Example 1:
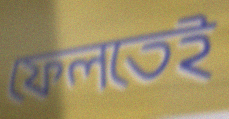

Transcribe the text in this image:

ফেলতেই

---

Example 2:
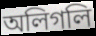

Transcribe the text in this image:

অলিগলি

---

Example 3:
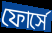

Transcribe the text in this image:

ফোর্সে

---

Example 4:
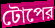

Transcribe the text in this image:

টোপের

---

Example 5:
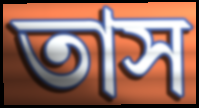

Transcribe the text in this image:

তাস